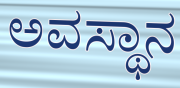
ಅವಸ್ಥಾನ